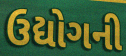
ઉદ્યોગની